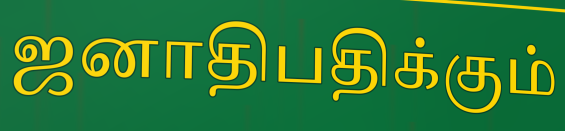
ஜனாதிபதிக்கும்